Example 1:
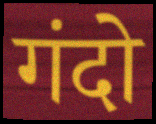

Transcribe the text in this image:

गंदो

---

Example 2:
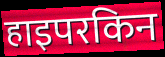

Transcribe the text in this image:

हाइपरकिन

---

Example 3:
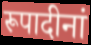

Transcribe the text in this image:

रूपादीनां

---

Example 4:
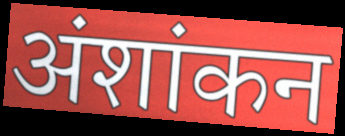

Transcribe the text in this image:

अंशांकन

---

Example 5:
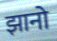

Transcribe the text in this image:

झानो